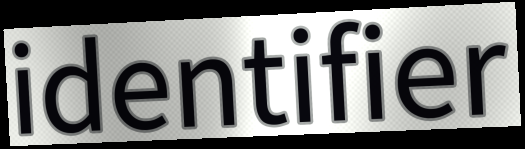
identifier